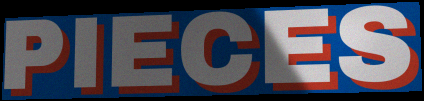
PIECES